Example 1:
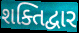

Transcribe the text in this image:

શક્તિદ્વાર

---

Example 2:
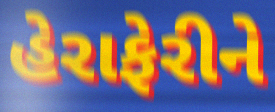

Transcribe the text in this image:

હેરાફેરીને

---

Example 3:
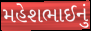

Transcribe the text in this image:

મહેશભાઈનું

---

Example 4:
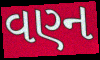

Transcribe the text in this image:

વણ્ન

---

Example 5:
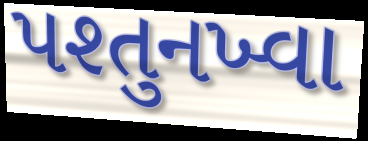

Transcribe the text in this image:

પશ્તુનખ્વા